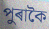
পুৰাকৈ